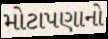
મોટાપણાનો